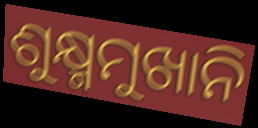
ଶୁକ୍ଷ୍ମମୁଖାନି